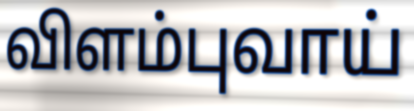
விளம்புவாய்